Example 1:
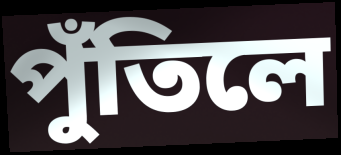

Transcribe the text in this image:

পুঁতিলে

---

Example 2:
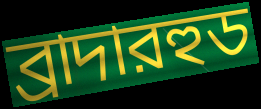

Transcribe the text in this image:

ব্রাদারহুড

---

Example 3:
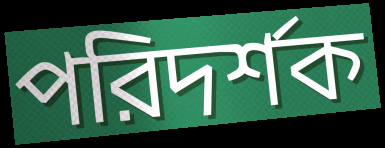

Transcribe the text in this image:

পরিদর্শক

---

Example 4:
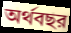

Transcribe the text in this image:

অর্থবছর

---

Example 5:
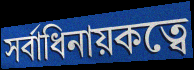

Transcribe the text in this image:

সর্বাধিনায়কত্বে